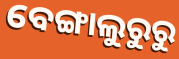
ବେଙ୍ଗାଲୁରୁରୁ